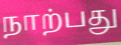
நாற்பது